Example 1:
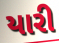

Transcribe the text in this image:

યારી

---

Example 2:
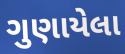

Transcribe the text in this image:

ગુણાયેલા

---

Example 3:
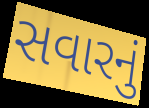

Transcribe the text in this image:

સવારનું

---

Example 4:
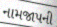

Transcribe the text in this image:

નામજાપની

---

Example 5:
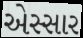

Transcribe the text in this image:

એસ્સાર